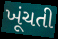
ખૂંચતી